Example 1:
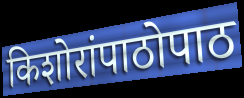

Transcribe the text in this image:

किशोरांपाठोपाठ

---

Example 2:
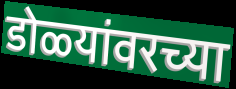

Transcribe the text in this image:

डोळ्यांवरच्या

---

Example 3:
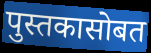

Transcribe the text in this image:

पुस्तकासोबत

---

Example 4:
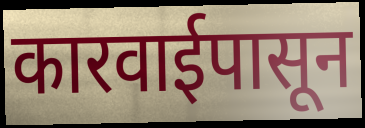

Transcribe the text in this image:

कारवाईपासून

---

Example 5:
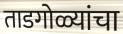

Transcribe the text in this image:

ताडगोळ्यांचा